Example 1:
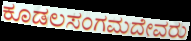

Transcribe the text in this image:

ಕೂಡಲಸಂಗಮದೇವರು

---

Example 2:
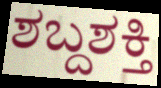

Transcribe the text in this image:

ಶಬ್ದಶಕ್ತಿ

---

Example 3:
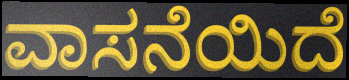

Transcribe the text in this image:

ವಾಸನೆಯಿದೆ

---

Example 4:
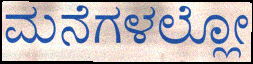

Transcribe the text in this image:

ಮನೆಗಳಲ್ಲೋ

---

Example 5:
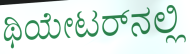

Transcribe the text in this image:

ಥಿಯೇಟರ್‌ನಲ್ಲಿ